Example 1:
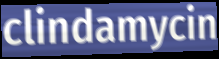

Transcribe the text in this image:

clindamycin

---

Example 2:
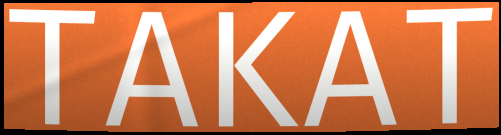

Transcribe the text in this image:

TAKAT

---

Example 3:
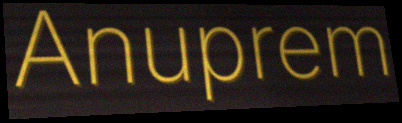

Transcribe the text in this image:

Anuprem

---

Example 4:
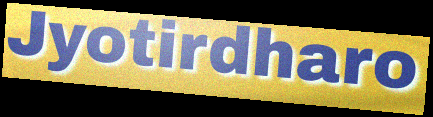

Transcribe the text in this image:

Jyotirdharo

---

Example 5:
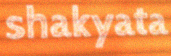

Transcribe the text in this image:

shakyata